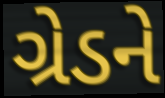
ગ્રેડને